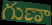
గుణా